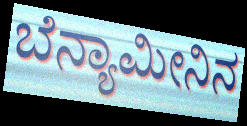
ಬೆನ್ಯಾಮೀನಿನ